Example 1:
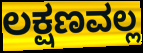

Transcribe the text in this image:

ಲಕ್ಷಣವಲ್ಲ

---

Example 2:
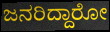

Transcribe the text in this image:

ಜನರಿದ್ದಾರೋ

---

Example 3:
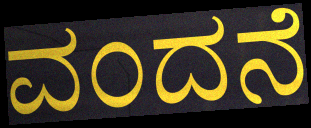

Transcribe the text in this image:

ವಂದನೆ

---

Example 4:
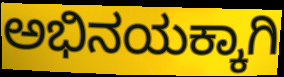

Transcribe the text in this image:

ಅಭಿನಯಕ್ಕಾಗಿ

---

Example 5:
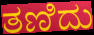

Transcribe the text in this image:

ತಣಿದು